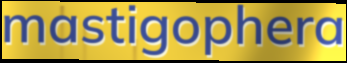
mastigophera